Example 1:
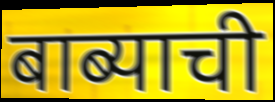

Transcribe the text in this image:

बाब्याची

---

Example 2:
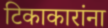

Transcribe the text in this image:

टिकाकारांना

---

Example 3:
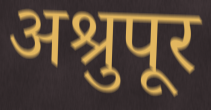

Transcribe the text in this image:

अश्रुपूर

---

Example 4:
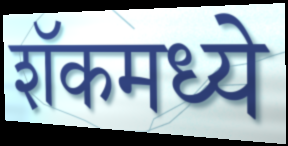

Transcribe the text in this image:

शॅकमध्ये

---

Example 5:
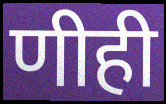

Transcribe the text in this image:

णीही